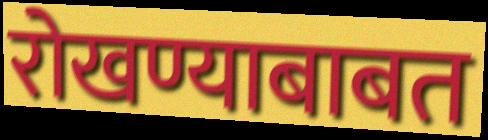
रोखण्याबाबत